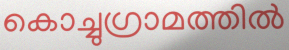
കൊച്ചുഗ്രാമത്തിൽ